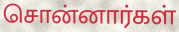
சொன்னார்கள்